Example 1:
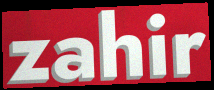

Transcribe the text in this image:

zahir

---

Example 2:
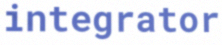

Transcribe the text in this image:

integrator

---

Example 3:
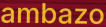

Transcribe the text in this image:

ambazo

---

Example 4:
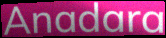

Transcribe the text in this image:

Anadara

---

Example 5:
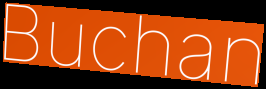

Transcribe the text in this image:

Buchan